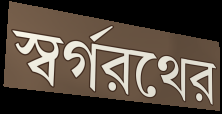
স্বর্গরথের